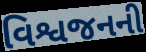
વિશ્વજનની